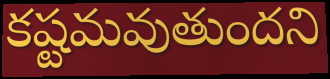
కష్టమవుతుందని